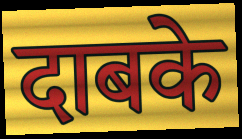
दाबके